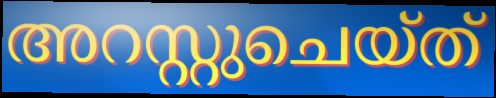
അറസ്റ്റുചെയ്ത്